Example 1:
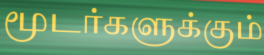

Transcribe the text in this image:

மூடர்களுக்கும்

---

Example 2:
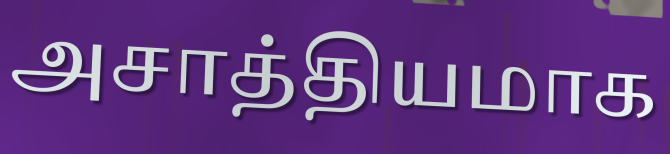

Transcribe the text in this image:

அசாத்தியமாக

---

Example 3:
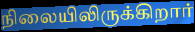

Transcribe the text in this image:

நிலையிலிருக்கிறார்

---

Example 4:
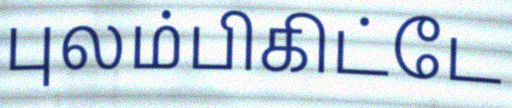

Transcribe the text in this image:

புலம்பிகிட்டே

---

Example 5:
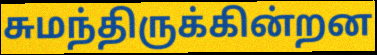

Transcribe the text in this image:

சுமந்திருக்கின்றன